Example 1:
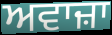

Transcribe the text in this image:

ਅਵਾਜ਼ਾ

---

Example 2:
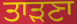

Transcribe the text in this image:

ਤਾੜਣਾ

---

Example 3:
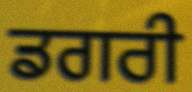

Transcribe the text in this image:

ਡਗਰੀ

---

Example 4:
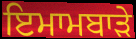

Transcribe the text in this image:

ਇਮਾਮਬਾੜੇ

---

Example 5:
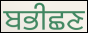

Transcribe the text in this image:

ਬਭੀਛਣ